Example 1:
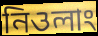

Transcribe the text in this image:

নিওলাং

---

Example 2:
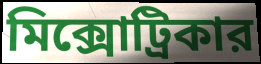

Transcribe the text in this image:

মিক্সোট্রিকার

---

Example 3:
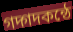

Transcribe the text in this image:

গদ্গদকন্ঠে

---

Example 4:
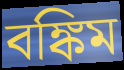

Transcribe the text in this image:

বঙ্কিম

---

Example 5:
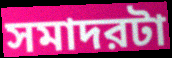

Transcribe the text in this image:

সমাদরটা